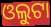
ଓଲୁଟା